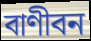
বাণীবন